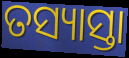
ତସ୍ୟାସ୍ତା